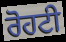
ਰੋਹਟੀ